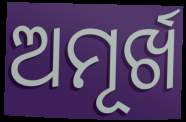
ଅମୂର୍ଖ